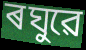
ৰঘুৱে